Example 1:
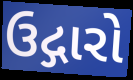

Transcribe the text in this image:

ઉદ્ગારો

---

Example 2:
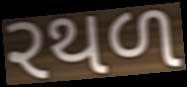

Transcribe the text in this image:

રથળ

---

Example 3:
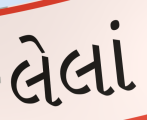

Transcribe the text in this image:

લેલાં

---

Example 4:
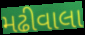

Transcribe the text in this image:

મઢીવાલા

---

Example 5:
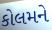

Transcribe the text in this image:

કોલમને